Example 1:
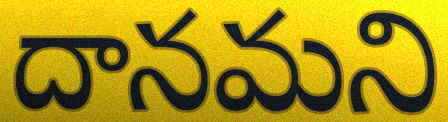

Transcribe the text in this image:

దానమని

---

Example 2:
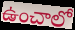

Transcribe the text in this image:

ఉంచాలో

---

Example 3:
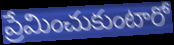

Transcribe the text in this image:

ప్రేమించుకుంటారో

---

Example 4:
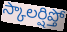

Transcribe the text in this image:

స్కాలర్షిప్తో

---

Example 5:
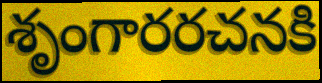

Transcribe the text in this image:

శృంగారరచనకి